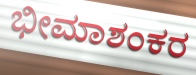
ಭೀಮಾಶಂಕರ